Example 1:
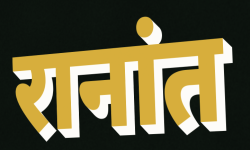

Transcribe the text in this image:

रानांत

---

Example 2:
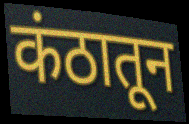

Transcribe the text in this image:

कंठातून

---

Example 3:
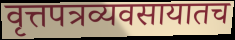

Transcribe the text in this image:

वृत्तपत्रव्यवसायातच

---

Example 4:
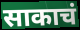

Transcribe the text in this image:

साकाचं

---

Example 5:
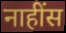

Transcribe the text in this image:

नाहींस